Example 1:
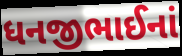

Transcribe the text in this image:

ધનજીભાઈનાં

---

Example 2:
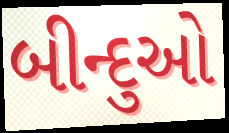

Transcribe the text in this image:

બીન્દુઓ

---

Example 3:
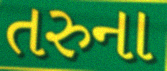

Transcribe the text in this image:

તરુના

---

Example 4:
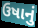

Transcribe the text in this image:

ઉષાનું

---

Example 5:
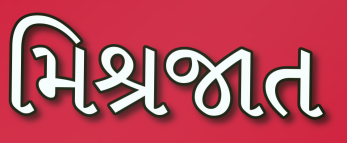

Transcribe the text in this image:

મિશ્રજાત